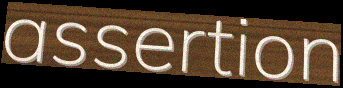
assertion